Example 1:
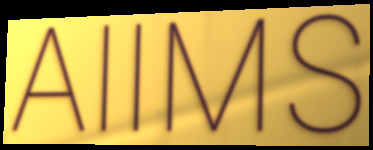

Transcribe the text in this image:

AIIMS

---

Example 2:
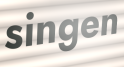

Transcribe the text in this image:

singen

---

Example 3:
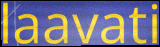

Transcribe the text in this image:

laavati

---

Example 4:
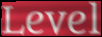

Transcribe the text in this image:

Level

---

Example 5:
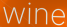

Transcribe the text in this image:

wine